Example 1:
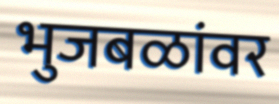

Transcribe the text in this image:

भुजबळांवर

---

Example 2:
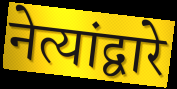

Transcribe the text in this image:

नेत्यांद्वारे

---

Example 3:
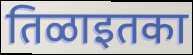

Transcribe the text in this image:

तिळाइतका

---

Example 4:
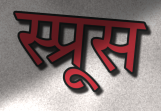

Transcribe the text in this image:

स्प्रूस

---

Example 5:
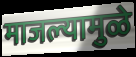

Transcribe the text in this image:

माजल्यामुळे